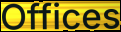
Offices